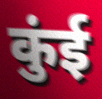
कुंई